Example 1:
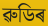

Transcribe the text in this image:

ৱুডিৰ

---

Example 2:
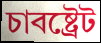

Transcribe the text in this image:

চাবষ্ট্ৰেট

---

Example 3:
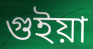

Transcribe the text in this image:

গুইয়া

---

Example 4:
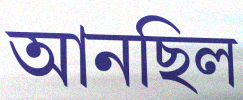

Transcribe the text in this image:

আনছিল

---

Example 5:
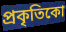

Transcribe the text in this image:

প্ৰকৃতিকো